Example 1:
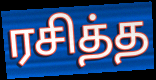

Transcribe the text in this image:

ரசித்த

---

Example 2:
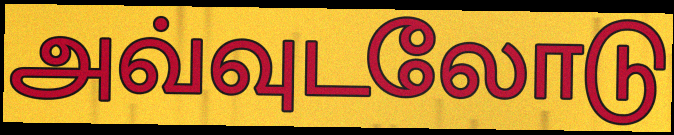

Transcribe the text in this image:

அவ்வுடலோடு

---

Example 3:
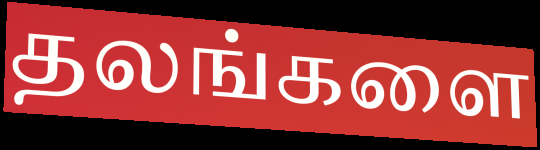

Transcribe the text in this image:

தலங்களை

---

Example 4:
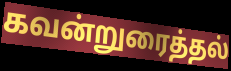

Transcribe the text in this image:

கவன்றுரைத்தல்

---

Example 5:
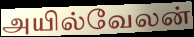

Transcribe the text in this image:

அயில்வேலன்